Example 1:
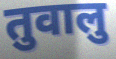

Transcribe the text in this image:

तुवालु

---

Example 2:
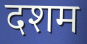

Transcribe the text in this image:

दशम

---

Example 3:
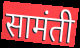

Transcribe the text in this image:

सामंती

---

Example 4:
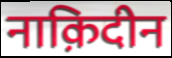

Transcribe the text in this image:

नाक़िदीन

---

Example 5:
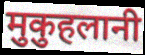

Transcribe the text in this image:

मुकुहलानी